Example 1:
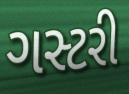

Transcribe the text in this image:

ગસ્ટરી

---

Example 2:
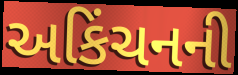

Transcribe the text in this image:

અકિંચનની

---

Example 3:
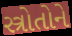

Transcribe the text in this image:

સ્ત્રોતોને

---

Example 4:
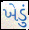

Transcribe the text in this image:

ખેડું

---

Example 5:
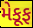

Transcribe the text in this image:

મેકૂફ